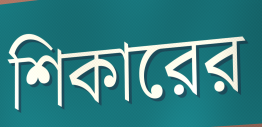
শিকারের